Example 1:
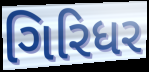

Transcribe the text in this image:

ગિરિધર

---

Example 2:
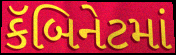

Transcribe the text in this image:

કૅબિનેટમાં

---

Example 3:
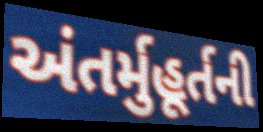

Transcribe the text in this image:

અંતર્મુહૂર્તની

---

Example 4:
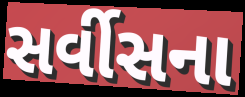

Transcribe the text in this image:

સર્વીસના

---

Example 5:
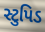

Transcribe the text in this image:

સ્ટુપિડ